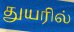
துயரில்